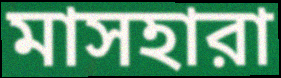
মাসহারা